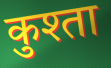
कुश्ता